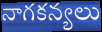
నాగకన్యలు